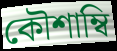
কৌশাম্বি